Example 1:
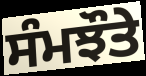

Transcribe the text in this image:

ਸੰਮਝੌਤੇ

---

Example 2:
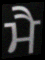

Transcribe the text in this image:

ਮੈ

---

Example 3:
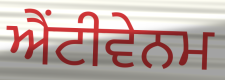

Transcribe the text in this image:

ਐਂਟੀਵੇਨਮ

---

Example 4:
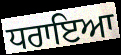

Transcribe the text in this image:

ਧਰਾਇਆ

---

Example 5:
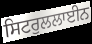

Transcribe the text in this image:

ਸਿਟਰੁਲਲਾਈਨ